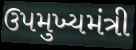
ઉપમુખ્યમંત્રી